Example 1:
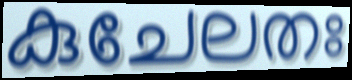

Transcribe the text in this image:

കുചേലതഃ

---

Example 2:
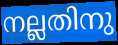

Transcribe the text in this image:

നല്ലതിനു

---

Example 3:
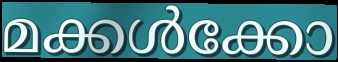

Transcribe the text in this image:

മക്കൾക്കോ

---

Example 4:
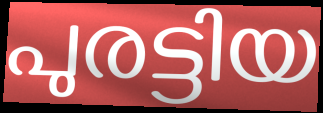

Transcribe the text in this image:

പുരട്ടിയ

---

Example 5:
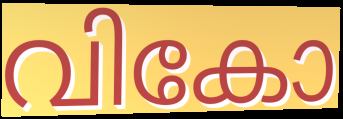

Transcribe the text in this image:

വികോ